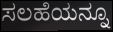
ಸಲಹೆಯನ್ನೂ